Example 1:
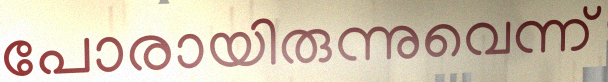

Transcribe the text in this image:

പോരായിരുന്നുവെന്ന്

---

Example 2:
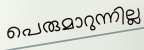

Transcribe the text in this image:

പെരുമാറുന്നില്ല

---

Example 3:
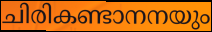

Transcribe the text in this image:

ചിരികണ്ടാനനയും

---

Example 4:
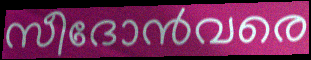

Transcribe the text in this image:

സീദോൻവരെ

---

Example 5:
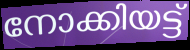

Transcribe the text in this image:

നോക്കിയട്ട്